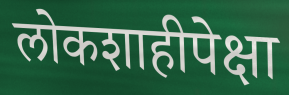
लोकशाहीपेक्षा